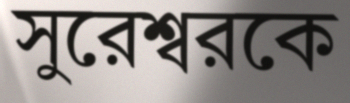
সুরেশ্বরকে